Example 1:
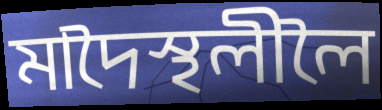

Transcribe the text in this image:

মাদৈস্থলীলৈ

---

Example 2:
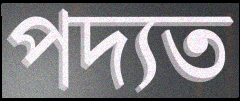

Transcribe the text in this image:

পদ্যত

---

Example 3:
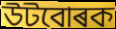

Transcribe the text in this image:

উটবোৰক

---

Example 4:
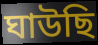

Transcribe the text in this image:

ঘাউছি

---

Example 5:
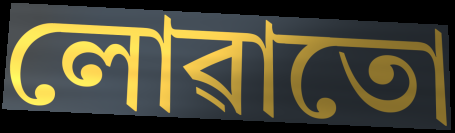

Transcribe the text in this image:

লোৱাতো